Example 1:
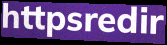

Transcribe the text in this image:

httpsredir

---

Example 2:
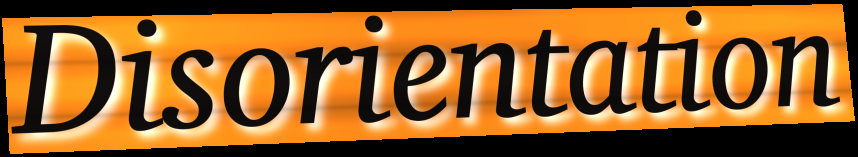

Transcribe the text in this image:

Disorientation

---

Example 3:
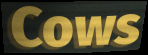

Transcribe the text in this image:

Cows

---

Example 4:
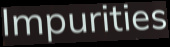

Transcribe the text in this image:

Impurities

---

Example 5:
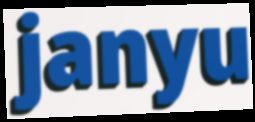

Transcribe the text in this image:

janyu